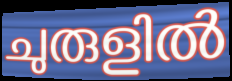
ചുരുളിൽ